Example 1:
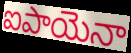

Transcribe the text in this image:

ఐపాయెనా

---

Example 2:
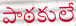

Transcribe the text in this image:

పాఠకులే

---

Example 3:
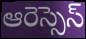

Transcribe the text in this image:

ఆరెస్సెస్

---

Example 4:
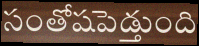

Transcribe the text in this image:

సంతోషపెడ్తుంది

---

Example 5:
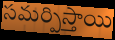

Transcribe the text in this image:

సమర్పిస్తాయి